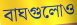
বাঘগুলোও